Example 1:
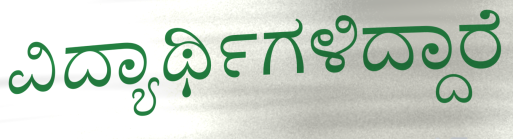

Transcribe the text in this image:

ವಿದ್ಯಾರ್ಥಿಗಳಿದ್ದಾರೆ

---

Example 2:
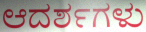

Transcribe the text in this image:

ಆದರ್ಶಗಳು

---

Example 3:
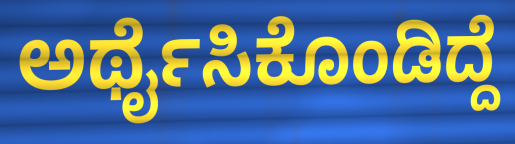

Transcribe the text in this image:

ಅರ್ಥೈಸಿಕೊಂಡಿದ್ದೆ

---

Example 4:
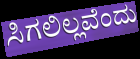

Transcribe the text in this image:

ಸಿಗಲಿಲ್ಲವೆಂದು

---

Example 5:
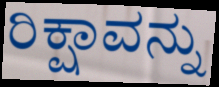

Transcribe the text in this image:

ರಿಕ್ಷಾವನ್ನು